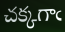
చక్కగాఁ